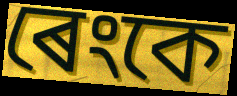
ৰেংকে